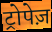
ट्रोपेज़